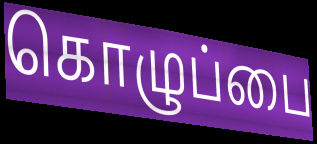
கொழுப்பை